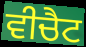
ਵੀਚੈਟ